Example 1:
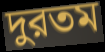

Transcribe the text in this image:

দুরতম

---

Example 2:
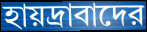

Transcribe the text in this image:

হায়দ্রাবাদের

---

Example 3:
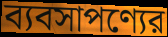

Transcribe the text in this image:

ব্যবসাপণ্যের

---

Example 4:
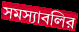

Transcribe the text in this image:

সমস্যাবলির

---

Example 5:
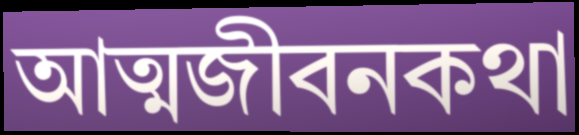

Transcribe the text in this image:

আত্মজীবনকথা